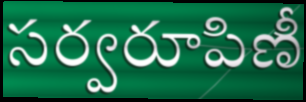
సర్వరూపిణీ